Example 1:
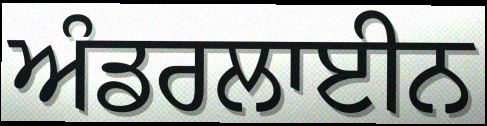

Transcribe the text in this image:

ਅੰਡਰਲਾਈਨ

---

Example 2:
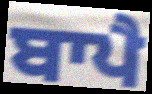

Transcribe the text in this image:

ਬਾਪੈ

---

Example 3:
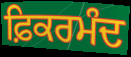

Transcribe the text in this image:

ਫ਼ਿਕਰਮੰਦ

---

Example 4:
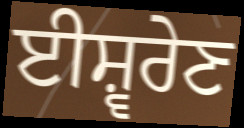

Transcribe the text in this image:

ਈਸ਼੍ਵਰੇਣ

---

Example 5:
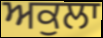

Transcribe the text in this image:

ਅਕੁਲਾ